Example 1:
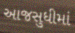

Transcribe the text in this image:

આજસુધીમાં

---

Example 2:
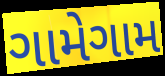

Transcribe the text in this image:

ગામેગામ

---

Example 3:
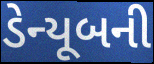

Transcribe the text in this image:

ડેન્યૂબની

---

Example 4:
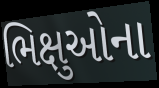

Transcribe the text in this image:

ભિક્ષુઓના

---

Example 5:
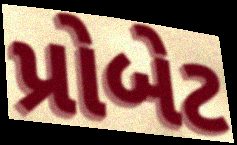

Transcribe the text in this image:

પ્રોબેટ